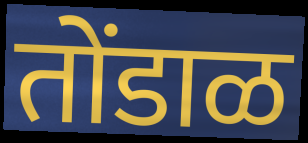
तोंडाळ